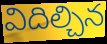
విదిల్చిన